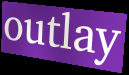
outlay